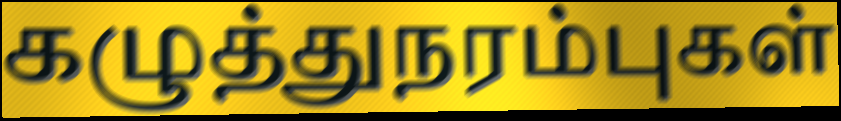
கழுத்துநரம்புகள்